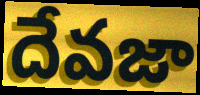
దేవజా